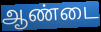
ஆண்டை